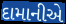
દામાનીએ